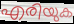
എരിയുക